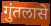
गुंतलासे